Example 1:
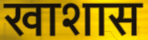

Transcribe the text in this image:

खाशास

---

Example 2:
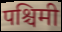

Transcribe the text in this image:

पश्चिमी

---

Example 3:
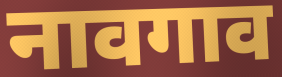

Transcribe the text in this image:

नावगाव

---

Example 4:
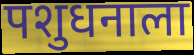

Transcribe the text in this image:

पशुधनाला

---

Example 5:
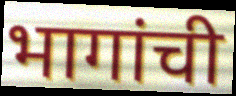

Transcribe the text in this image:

भागांची